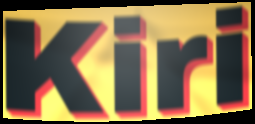
Kiri